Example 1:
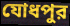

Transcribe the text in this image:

যোধপুর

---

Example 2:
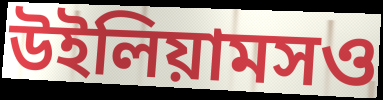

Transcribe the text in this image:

উইলিয়ামসও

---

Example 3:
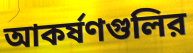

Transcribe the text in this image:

আকর্ষণগুলির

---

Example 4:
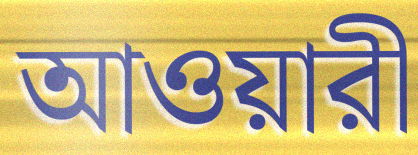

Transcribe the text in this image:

আওয়ারী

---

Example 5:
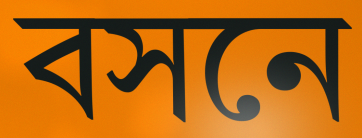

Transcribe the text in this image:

বসনে